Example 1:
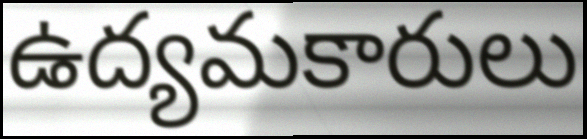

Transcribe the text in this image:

ఉద్యమకారులు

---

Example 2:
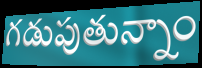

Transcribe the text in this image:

గడుపుతున్నాం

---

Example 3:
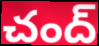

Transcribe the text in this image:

చంద్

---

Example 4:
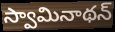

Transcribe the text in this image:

స్వామినాథన్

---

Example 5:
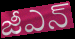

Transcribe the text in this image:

జీఎన్